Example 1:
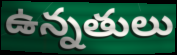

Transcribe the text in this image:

ఉన్నతులు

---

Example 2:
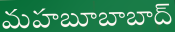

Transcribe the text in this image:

మహబూబాబాద్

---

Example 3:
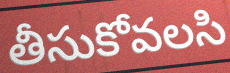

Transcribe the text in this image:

తీసుకోవలసి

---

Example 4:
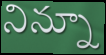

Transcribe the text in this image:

నిన్నూ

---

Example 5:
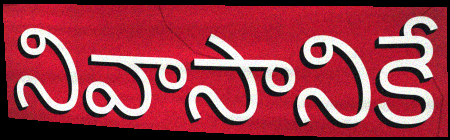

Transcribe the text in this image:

నివాసానికే